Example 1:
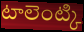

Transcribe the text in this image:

టాలెంట్కి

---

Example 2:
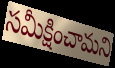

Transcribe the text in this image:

సమీక్షించామని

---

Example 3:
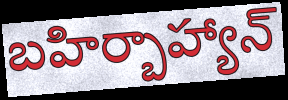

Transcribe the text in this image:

బహిర్బాహ్యాన్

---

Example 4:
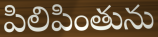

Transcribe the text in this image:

పిలిపింతును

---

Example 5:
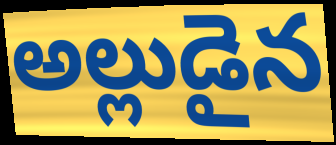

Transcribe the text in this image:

అల్లుడైన